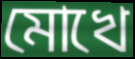
মোখে